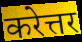
करेत्तर